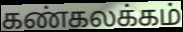
கண்கலக்கம்